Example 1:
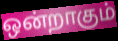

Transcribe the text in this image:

ஒன்றாகும்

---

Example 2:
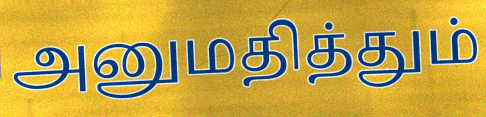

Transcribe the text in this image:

அனுமதித்தும்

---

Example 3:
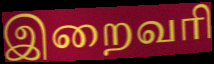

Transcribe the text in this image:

இறைவரி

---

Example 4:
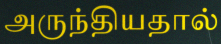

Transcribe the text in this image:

அருந்தியதால்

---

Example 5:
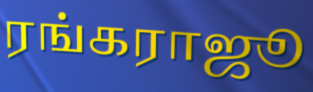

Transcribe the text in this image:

ரங்கராஜூ